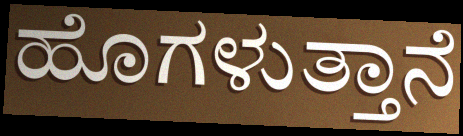
ಹೊಗಳುತ್ತಾನೆ